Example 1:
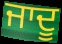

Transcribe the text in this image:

ਜਾਦੂ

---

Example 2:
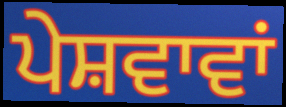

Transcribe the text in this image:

ਪੇਸ਼ਵਾਵਾਂ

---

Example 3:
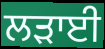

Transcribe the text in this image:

ਲੜਾਈ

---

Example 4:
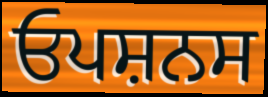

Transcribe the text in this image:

ਓਪਸ਼ਨਸ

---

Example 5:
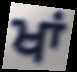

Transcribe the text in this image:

ਖਾਂ